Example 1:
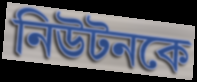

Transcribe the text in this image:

নিউটনকে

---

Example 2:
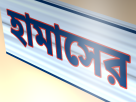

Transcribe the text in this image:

হামাসের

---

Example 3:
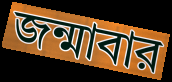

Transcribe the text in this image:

জন্মাবার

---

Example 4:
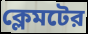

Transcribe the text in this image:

ক্লেমটের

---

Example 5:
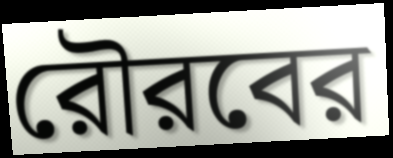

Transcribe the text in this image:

রৌরবের